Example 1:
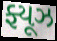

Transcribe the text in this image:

ફ્યૂઝ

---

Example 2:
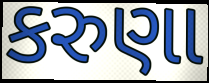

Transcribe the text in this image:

કરુણા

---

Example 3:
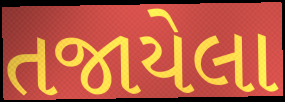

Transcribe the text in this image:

તજાયેલા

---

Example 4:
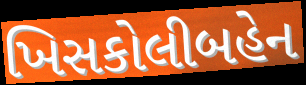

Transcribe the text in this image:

ખિસકોલીબહેન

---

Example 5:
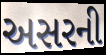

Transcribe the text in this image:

અસરની